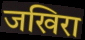
जखिरा